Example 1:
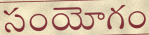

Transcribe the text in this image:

సంయోగం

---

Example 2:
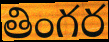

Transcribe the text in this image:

తింగర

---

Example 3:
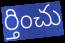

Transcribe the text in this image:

ర్తించు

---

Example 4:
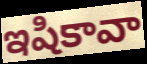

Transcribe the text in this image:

ఇషికావా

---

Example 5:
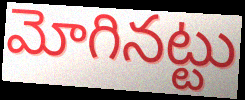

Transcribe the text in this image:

మోగినట్టు